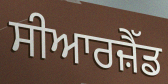
ਸੀਆਰਜ਼ੈੱਡ